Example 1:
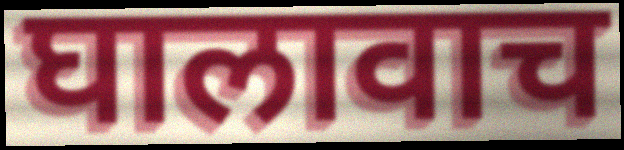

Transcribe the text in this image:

घालावाच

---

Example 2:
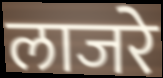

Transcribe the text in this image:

लाजरे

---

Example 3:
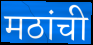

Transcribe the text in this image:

मठांची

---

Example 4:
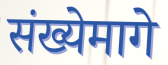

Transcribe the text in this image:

संख्येमागे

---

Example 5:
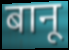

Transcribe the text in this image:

बानू